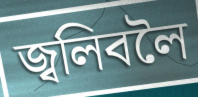
জ্বলিবলৈ